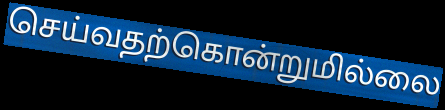
செய்வதற்கொன்றுமில்லை